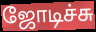
ஜோடிச்சு